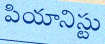
పియానిస్టు